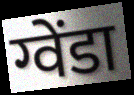
ग्वेंडा